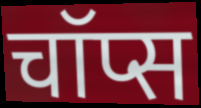
चॉप्स